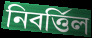
নিবর্ত্তিল